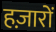
हज़ारों